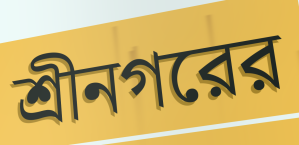
শ্রীনগরের